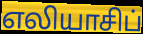
எலியாசிப்